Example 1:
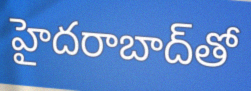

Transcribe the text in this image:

హైదరాబాద్‌తో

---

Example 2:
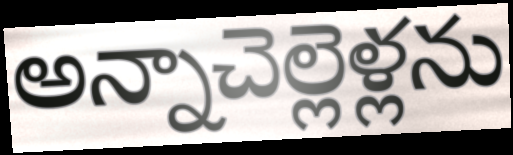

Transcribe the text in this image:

అన్నాచెల్లెళ్లను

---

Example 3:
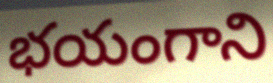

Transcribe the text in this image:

భయంగాని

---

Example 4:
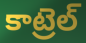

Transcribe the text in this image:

కాట్రెల్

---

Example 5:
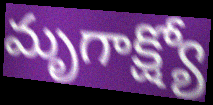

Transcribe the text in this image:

మృగాక్ష్యో